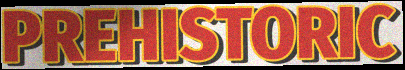
PREHISTORIC